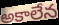
అకాలేన